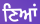
ਣਿਆਂ